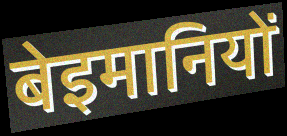
बेइमानियों